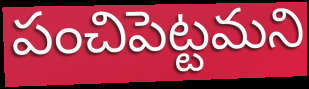
పంచిపెట్టమని